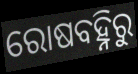
ରୋଷବହ୍ନିରୁ